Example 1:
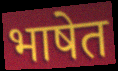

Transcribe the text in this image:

भाषेत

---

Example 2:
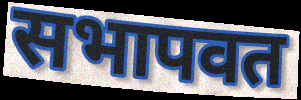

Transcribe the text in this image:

सभापवत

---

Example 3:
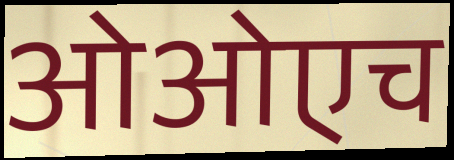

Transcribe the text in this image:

ओओएच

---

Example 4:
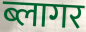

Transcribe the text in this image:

ब्लागर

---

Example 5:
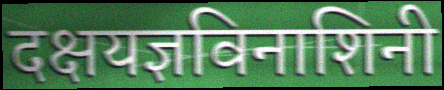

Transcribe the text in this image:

दक्षयज्ञविनाशिनी